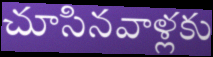
చూసినవాళ్లకు